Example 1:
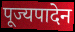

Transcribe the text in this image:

पूज्यपादेन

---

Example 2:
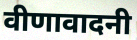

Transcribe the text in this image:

वीणावादनी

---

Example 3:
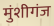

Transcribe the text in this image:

मुंशीगंज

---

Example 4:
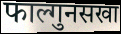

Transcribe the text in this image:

फाल्गुनसखा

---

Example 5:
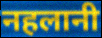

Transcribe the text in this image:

नहलानी